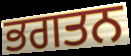
ਭਗਤਨ